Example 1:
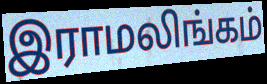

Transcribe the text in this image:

இராமலிங்கம்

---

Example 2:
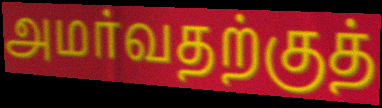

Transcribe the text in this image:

அமர்வதற்குத்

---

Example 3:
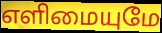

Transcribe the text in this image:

எளிமையுமே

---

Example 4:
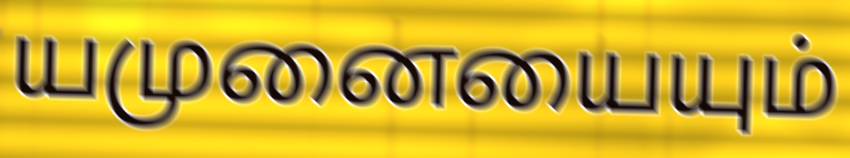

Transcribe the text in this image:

யமுனையையும்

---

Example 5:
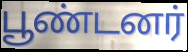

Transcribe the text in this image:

பூண்டனர்